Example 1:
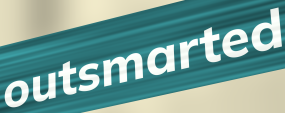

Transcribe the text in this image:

outsmarted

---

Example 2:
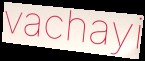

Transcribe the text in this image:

vachayi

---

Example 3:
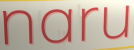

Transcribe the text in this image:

naru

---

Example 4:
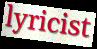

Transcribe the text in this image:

lyricist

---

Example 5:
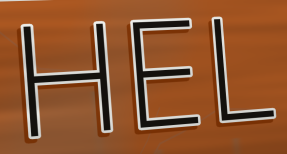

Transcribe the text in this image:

HEL